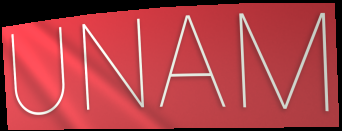
UNAM